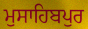
ਮੁਸਾਹਿਬਪੁਰ